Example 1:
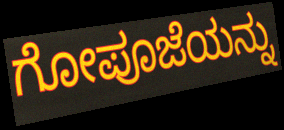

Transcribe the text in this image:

ಗೋಪೂಜೆಯನ್ನು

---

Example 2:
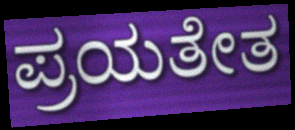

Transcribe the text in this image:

ಪ್ರಯತೇತ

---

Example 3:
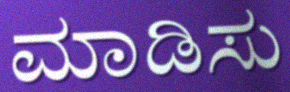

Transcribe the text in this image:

ಮಾಡಿಸು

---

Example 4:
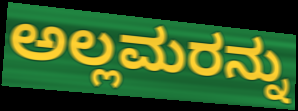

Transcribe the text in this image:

ಅಲ್ಲಮರನ್ನು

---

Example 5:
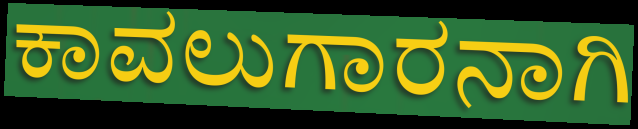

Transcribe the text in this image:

ಕಾವಲುಗಾರನಾಗಿ